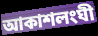
আকাশলংঘী